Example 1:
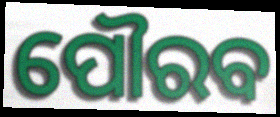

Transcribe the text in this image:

ପୌରବ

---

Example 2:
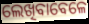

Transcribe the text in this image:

ଲେଖିବାବେଳେ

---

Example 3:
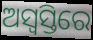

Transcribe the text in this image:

ଅସ୍ୱସ୍ତିରେ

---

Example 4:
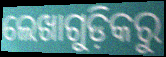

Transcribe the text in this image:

ଲେଖାଗୁଡ଼ିକରୁ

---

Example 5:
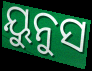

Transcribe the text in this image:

ୟୁନୁସ